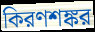
কিরণশঙ্কর